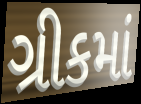
ગ્રીકમાં